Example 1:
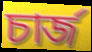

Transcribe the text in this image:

চাৰ্জ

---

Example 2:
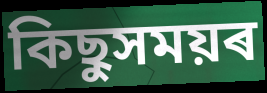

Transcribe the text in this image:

কিছুসময়ৰ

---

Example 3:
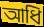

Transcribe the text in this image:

আধি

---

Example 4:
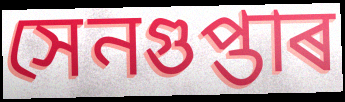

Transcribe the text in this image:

সেনগুপ্তাৰ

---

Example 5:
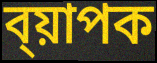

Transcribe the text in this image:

ব্য়াপক